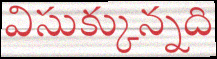
విసుక్కున్నది